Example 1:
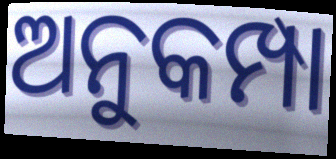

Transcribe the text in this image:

ଅନୁକମ୍ପା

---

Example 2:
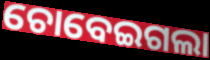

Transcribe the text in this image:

ଚୋବେଇଗଲା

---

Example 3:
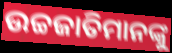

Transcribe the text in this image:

ଉଚ୍ଚଜାତିମାନଙ୍କୁ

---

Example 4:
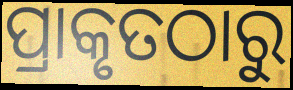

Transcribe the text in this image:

ପ୍ରାକୃତଠାରୁ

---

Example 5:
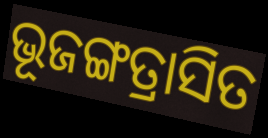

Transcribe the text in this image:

ଭୂଜଙ୍ଗତ୍ରାସିତ